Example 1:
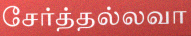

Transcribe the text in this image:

சேர்த்தல்லவா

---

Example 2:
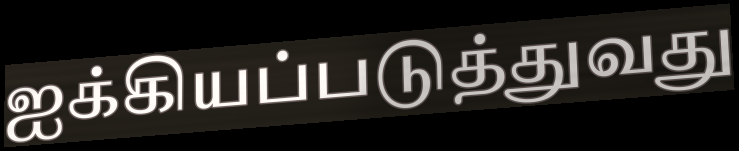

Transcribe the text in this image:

ஐக்கியப்படுத்துவது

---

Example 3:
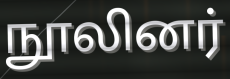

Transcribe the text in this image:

நூலினர்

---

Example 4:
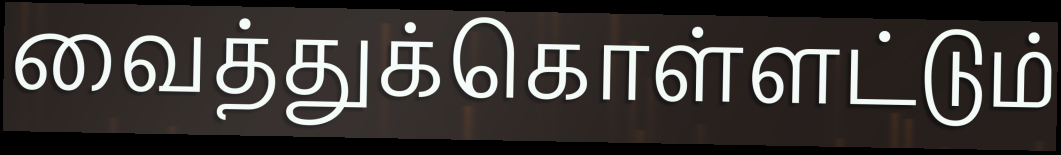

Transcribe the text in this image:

வைத்துக்கொள்ளட்டும்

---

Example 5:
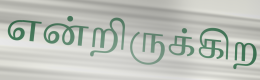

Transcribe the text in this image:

என்றிருக்கிற